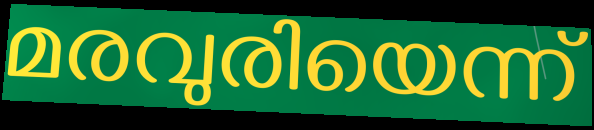
മരവുരിയെന്ന്